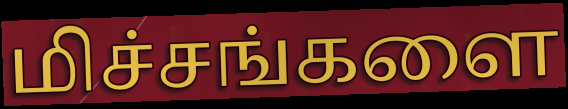
மிச்சங்களை